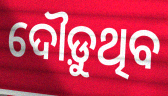
ଦୌଡ଼ୁଥିବ